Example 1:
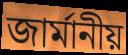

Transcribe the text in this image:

জাৰ্মানীয়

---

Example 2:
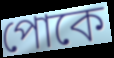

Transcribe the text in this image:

পোকে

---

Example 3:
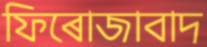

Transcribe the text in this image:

ফিৰোজাবাদ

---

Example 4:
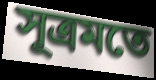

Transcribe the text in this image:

সূত্ৰমতে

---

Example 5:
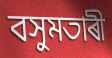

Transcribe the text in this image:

বসুমতাৰী